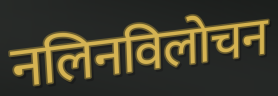
नलिनविलोचन